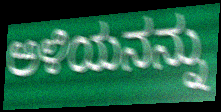
ಅಳಿಯನನ್ನು